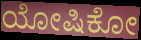
ಯೋಷಿಕೋ